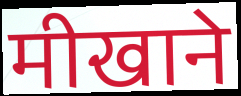
मीखाने